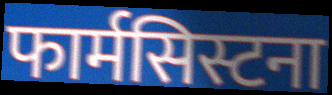
फार्मसिस्टना